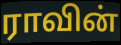
ராவின்